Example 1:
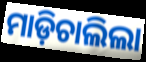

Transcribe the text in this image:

ମାଡ଼ିଚାଲିଲା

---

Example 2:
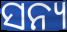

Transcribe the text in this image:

ସନ୍ୟ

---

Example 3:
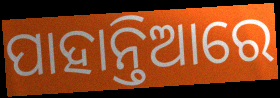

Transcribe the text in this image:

ପାହାନ୍ତିଆରେ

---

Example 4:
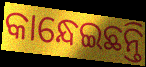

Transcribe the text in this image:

କାନ୍ଧେଇଛନ୍ତି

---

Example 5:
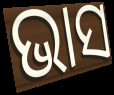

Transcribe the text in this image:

ଭାସ